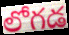
లోగడ